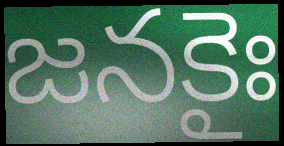
జనకైః